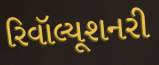
રિવૉલ્યૂશનરી